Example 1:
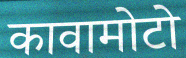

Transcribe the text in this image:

कावामोटो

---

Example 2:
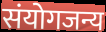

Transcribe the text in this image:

संयोगजन्य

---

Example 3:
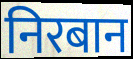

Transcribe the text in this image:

निरबान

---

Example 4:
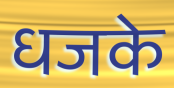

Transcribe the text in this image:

धजके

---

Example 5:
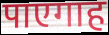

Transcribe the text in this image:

पाएगाह